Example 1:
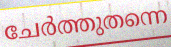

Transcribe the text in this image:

ചേർത്തുതന്നെ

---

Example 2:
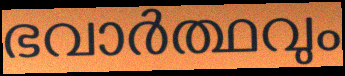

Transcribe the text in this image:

ഭവാർത്ഥവും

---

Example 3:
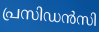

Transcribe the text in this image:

പ്രസിഡൻസി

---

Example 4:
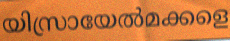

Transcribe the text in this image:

യിസ്രായേൽമക്കളെ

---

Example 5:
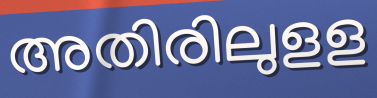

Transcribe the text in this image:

അതിരിലുളള